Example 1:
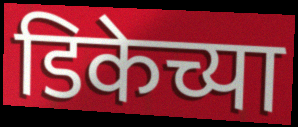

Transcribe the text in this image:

डिकेच्या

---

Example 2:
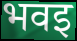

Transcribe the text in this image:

भवइ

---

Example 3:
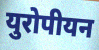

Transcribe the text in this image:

युरोपीयन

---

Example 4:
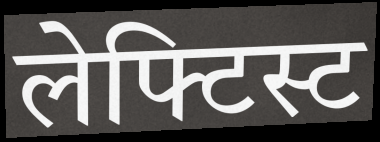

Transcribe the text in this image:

लेफ्टिस्ट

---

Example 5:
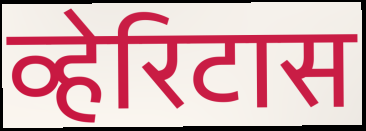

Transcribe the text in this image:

व्हेरिटास